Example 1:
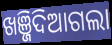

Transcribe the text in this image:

ଖଞ୍ଜିଦିଆଗଲା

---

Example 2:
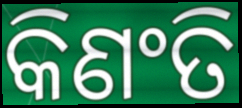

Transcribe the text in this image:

କିଣଂତି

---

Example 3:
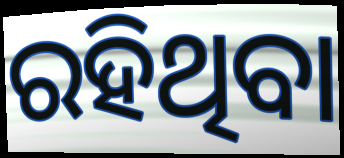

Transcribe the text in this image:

ରହିଥିବା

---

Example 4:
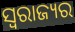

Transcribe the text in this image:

ସ୍ୱରାଜ୍ୟର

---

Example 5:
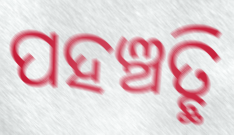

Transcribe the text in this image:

ପହଞ୍ଚତ୍ଛି